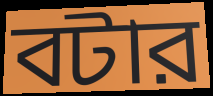
বটার